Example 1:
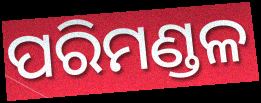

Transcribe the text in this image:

ପରିମଣ୍ଡଳ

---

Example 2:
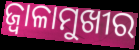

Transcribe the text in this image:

ଜ୍ୱାଳାମୁଖୀର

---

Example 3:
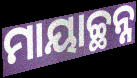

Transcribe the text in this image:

ମାୟାଚ୍ଛନ୍ନ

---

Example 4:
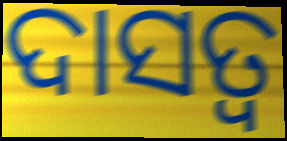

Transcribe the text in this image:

ଦାସତ୍ଵ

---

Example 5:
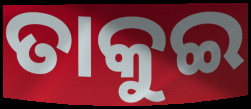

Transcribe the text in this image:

ତାକୁଇ